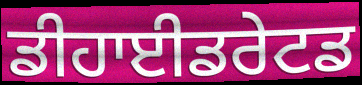
ਡੀਹਾਈਡਰੇਟਡ